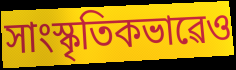
সাংস্কৃতিকভাৱেও